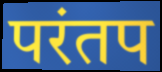
परंतप